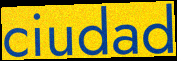
ciudad